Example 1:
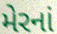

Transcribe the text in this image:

મેરનાં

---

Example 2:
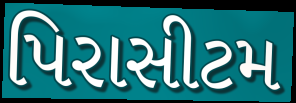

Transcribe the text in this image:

પિરાસીટમ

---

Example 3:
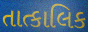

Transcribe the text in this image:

તાત્કાલિક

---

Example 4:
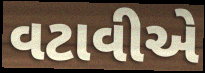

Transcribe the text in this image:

વટાવીએ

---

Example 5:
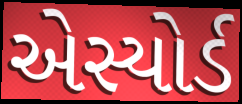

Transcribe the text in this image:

એસ્યોર્ડ